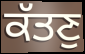
ਕੱਤਣੁ